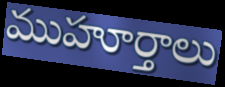
ముహూర్తాలు